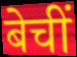
बेचीं